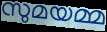
സുമയമ്മ